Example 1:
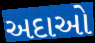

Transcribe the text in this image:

અદાઓ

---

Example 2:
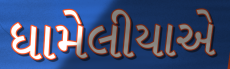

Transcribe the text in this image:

ધામેલીયાએ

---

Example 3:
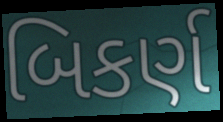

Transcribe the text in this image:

બિકર્ણ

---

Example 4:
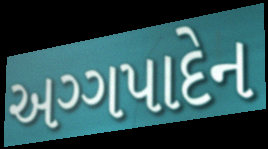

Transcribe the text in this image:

અગ્ગપાદેન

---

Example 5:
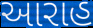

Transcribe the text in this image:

આરાહ